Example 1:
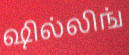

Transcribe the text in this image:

ஷில்லிங்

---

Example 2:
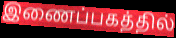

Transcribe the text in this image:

இணைப்பகத்தில்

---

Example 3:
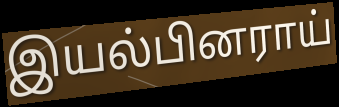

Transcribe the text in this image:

இயல்பினராய்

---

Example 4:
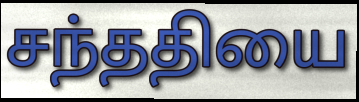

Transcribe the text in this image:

சந்ததியை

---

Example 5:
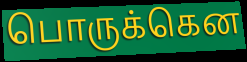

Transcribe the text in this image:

பொருக்கென